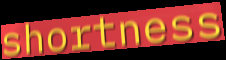
shortness